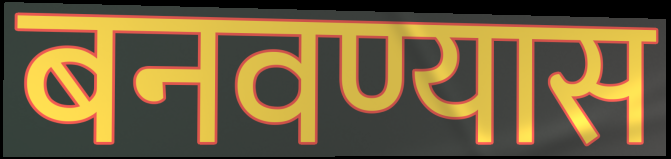
बनवण्यास